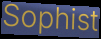
Sophist